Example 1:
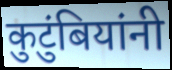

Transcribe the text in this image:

कुटुंबियांनी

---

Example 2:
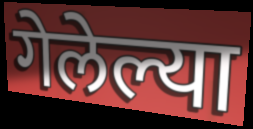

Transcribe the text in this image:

गेलेल्या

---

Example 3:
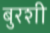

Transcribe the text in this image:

बुरशी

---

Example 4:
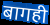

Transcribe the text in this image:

बागही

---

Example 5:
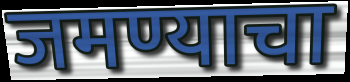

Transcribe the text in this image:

जमण्याचा